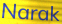
Narak